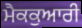
ਮੈਕਕੁਆਰੀ